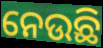
ନେଉଛି